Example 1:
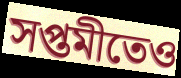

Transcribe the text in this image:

সপ্তমীতেও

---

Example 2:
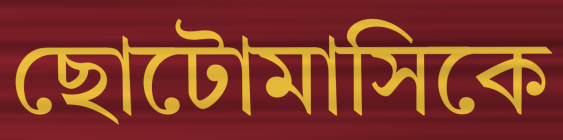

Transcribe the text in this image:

ছোটোমাসিকে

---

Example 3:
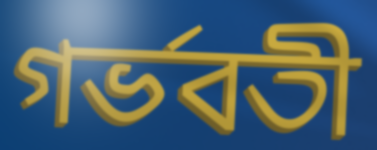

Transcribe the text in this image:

গর্ভবতী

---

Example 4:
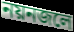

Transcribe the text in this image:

নয়নজলে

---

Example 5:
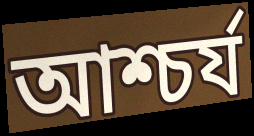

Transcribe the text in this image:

আশ্চর্য